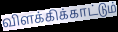
விளக்கிக்காட்டும்